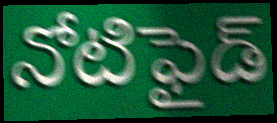
నోటిఫైడ్